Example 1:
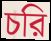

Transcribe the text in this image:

চরি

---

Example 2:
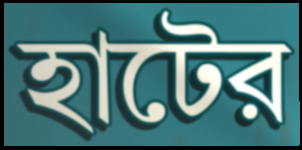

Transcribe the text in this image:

হাটের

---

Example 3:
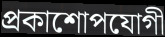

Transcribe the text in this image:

প্রকাশোপযোগী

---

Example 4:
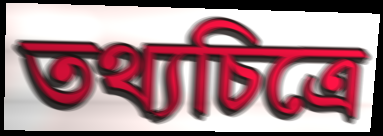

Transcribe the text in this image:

তথ্যচিত্রে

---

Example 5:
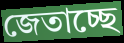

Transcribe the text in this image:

জেতাচ্ছে